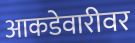
आकडेवारीवर